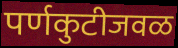
पर्णकुटीजवळ